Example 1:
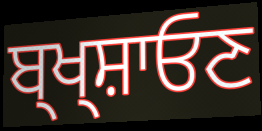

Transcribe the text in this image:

ਬ੍ਖ੍ਸ਼ਾਓਣ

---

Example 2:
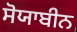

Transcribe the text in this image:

ਸੋਯਾਬੀਨ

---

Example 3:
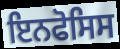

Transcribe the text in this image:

ਇਨਫੋਸਿਸ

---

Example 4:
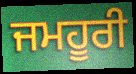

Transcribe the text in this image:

ਜਮਹੂਰੀ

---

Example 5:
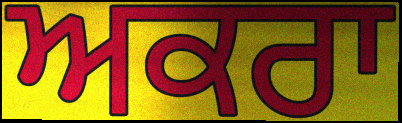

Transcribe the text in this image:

ਅਕਰਾ